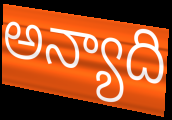
అన్యాది